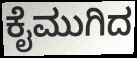
ಕೈಮುಗಿದ